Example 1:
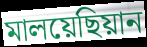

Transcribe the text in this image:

মালয়েছিয়ান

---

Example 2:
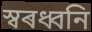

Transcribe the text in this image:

স্বৰধ্বনি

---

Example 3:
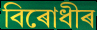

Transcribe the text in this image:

বিৰোধীৰ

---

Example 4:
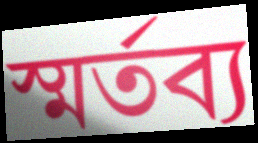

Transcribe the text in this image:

স্মৰ্তব্য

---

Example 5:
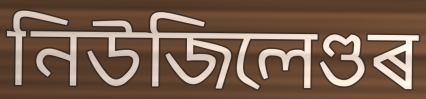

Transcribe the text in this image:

নিউজিলেণ্ডৰ